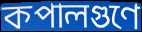
কপালগুণে